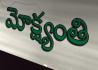
మోక్ష్యంతి